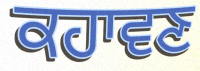
ਕਹਾਵਣ